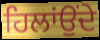
ਹਿਲਾਂਉਂਦੇ